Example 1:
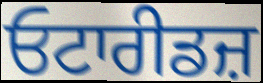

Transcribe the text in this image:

ਓਟਾਰੀਡਜ਼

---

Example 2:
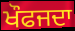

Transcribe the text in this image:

ਖੌਫਜਦਾ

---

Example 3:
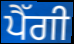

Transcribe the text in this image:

ਪੈੱਗੀ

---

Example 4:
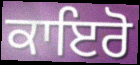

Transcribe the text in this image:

ਕਾਇਰੋ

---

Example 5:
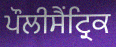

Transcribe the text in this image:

ਪੌਲੀਸੈਂਟ੍ਰਿਕ